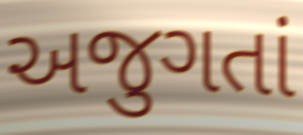
અજુગતાં